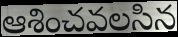
ఆశించవలసిన